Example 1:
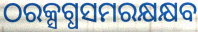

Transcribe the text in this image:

ଠରକ୍ସଗ୍ଧସମରକ୍ଷକ୍ଷବ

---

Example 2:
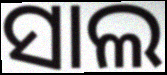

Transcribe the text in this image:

ସାଲ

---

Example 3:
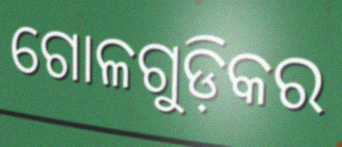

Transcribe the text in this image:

ଗୋଳଗୁଡ଼ିକର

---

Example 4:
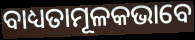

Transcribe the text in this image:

ବାଧ୍ୟତାମୂଳକଭାବେ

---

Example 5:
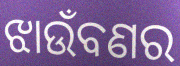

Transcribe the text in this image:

ଝାଉଁବଣର